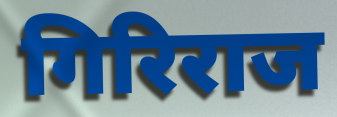
गिरिराज